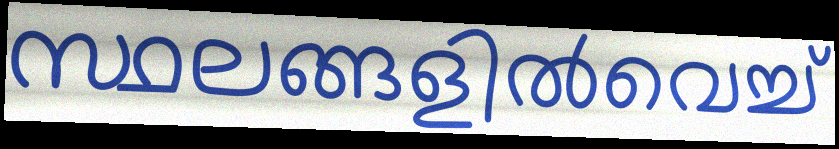
സ്ഥലങ്ങളിൽവെച്ച്